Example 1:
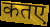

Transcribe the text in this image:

कतए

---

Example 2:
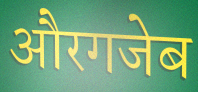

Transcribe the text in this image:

औरगजेब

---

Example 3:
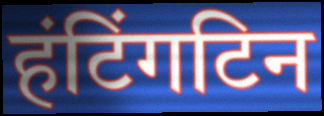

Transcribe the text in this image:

हंटिंगटिन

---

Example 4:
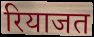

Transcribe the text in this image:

रियाजत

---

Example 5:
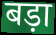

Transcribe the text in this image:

बड़ा